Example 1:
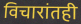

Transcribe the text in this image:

विचारांतही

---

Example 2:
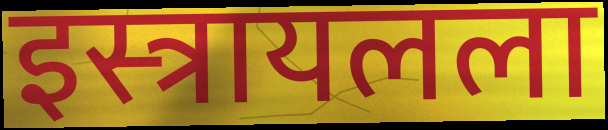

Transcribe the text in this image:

इस्त्रायलला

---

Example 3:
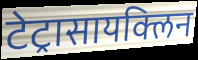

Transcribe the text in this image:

टेट्रासायक्लिन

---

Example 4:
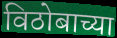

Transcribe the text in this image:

विठोबाच्या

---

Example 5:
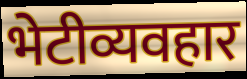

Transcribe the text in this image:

भेटीव्यवहार